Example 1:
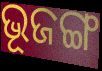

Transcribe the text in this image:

ଭୂଜଙ୍ଗ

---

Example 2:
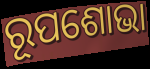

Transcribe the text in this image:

ରୂପଶୋଭା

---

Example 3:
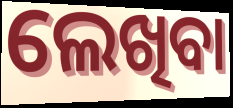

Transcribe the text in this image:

ଲେଖିବା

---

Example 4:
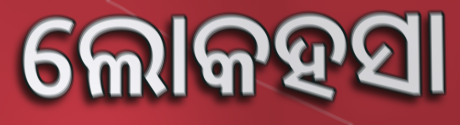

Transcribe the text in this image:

ଲୋକହସା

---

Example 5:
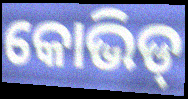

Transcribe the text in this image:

କୋଭିଡ୍